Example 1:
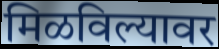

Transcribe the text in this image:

मिळविल्यावर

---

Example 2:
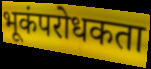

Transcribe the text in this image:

भूकंपरोधकता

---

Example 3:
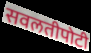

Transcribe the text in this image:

सवलतीपोटी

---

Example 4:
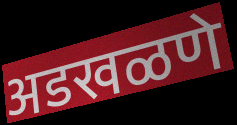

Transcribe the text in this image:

अडखळणे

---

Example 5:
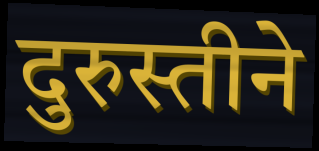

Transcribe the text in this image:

दुरुस्तीने